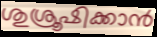
ശുശ്രൂഷിക്കാൻ